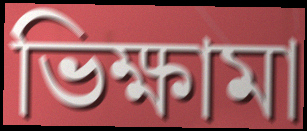
ভিক্ষামা